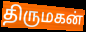
திருமகன்